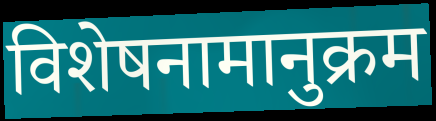
विशेषनामानुक्रम